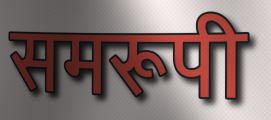
समरूपी